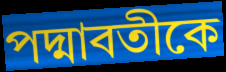
পদ্মাবতীকে